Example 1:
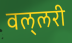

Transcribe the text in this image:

वल्लरी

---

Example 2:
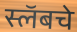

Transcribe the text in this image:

स्लॅबचे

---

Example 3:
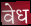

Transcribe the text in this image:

वेध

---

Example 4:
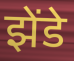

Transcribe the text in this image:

झेंडे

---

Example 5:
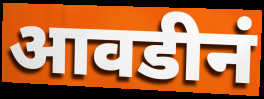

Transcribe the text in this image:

आवडीनं